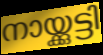
നായ്ക്കുട്ടി